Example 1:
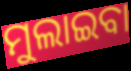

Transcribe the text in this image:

ମୁଲାଇବା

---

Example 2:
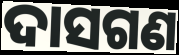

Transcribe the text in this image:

ଦାସଗଣ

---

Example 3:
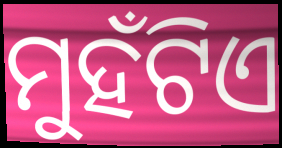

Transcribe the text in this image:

ମୁହଁଟିଏ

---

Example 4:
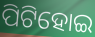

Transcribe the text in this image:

ପିଟିହୋଇ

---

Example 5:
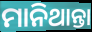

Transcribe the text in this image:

ମାନିଥାନ୍ତା